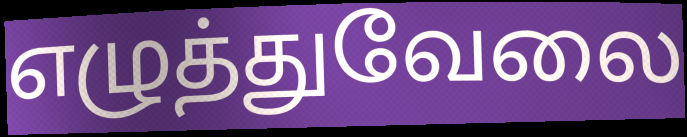
எழுத்துவேலை